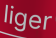
liger